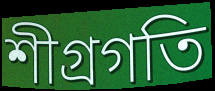
শীগ্রগতি